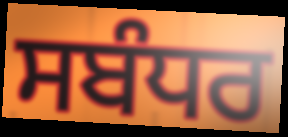
ਸਬੰਧਰ